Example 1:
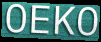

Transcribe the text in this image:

OEKO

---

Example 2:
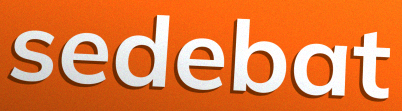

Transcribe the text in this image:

sedebat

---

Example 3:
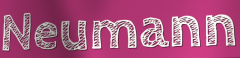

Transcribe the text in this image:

Neumann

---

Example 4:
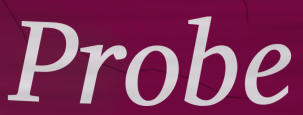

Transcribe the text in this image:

Probe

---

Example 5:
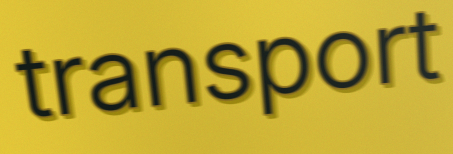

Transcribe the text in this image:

transport